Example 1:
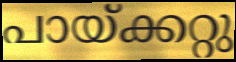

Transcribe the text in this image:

പായ്ക്കറ്റു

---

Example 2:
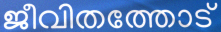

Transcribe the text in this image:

ജീവിതത്തോട്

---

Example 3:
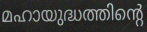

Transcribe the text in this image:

മഹായുദ്ധത്തിന്റെ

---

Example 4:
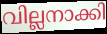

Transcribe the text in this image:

വില്ലനാക്കി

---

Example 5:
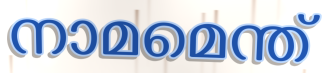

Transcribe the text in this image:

നാമമെന്ത്